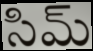
సిమ్